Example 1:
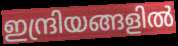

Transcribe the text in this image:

ഇന്ദ്രിയങ്ങളിൽ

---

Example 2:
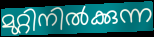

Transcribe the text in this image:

മുറ്റിനിൽക്കുന്ന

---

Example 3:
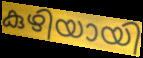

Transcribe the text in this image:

കുഴിയായി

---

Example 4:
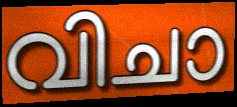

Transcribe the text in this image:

വിചാ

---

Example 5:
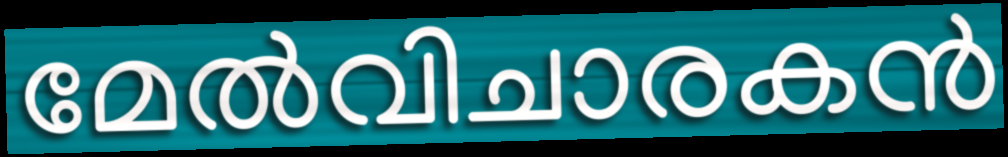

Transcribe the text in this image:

മേൽവിചാരകൻ